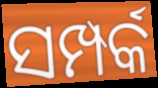
ସମ୍ପର୍କ